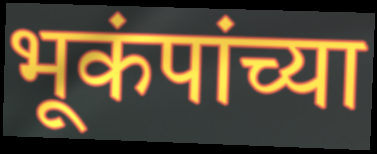
भूकंपांच्या